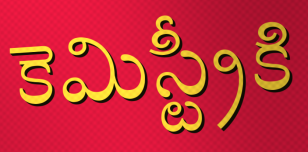
కెమిస్ట్రీకి